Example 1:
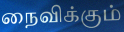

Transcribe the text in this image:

நைவிக்கும்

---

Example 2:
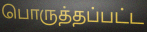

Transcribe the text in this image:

பொருத்தப்பட்ட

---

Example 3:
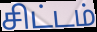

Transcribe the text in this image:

சிட்டம்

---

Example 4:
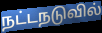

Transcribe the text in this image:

நட்டநடுவில்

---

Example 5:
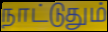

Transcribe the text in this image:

நாட்டுதும்